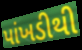
પાંખડીથી